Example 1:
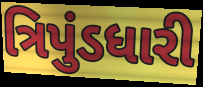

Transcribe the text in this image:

ત્રિપુંડધારી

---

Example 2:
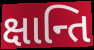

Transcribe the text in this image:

ક્ષાન્તિ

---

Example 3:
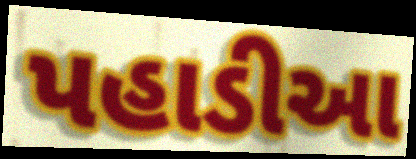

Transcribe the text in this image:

પહાડીઆ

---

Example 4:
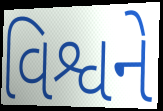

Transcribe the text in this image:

વિશ્વને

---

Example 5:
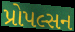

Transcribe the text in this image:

પ્રોપલ્સન